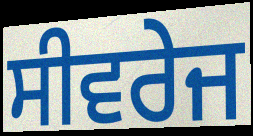
ਸੀਵਰੇਜ